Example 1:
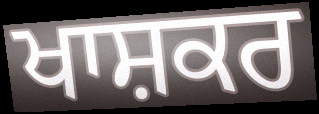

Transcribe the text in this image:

ਖਾਸ਼ਕਰ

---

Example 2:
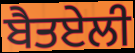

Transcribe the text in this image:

ਬੈਤਏਲੀ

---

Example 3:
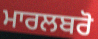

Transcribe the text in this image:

ਮਾਰਲਬਰੋ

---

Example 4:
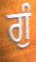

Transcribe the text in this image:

ਗੁੰ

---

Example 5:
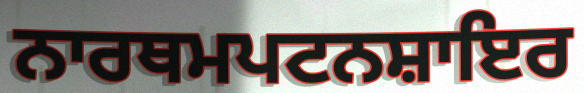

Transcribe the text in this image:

ਨਾਰਥਮਪਟਨਸ਼ਾਇਰ